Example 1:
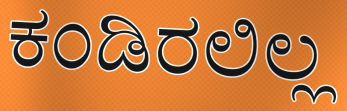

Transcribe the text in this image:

ಕಂಡಿರಲಿಲ್ಲ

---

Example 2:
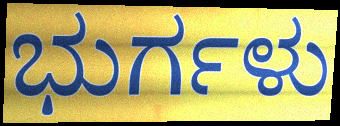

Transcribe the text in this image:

ಭುರ್ಗಳು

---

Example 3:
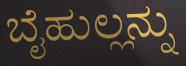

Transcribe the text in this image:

ಬೈಹುಲ್ಲನ್ನು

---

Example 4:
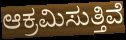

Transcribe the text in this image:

ಆಕ್ರಮಿಸುತ್ತಿವೆ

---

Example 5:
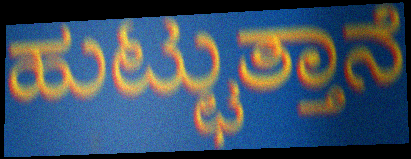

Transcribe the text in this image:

ಹುಟ್ಟುತ್ತಾನೆ